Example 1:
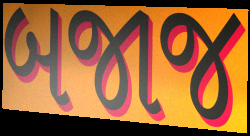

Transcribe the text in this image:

બજાજ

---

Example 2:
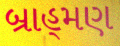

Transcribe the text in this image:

બ્રાહ્‌મણ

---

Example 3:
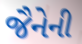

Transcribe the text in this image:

જૈનેની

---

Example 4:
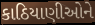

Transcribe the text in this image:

કાઠિયાણીઓને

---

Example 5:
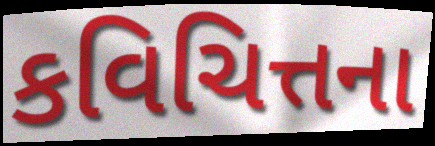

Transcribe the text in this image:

કવિચિત્તના